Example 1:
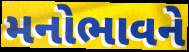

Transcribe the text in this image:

મનોભાવને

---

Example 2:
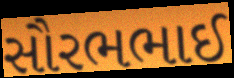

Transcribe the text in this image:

સૌરભભાઈ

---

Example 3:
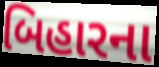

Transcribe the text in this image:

બિહારના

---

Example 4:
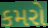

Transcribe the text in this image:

કમરો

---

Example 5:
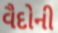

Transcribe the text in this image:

વૈદોની